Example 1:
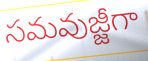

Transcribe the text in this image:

సమవుజ్జీగా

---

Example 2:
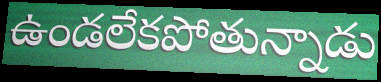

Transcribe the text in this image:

ఉండలేకపోతున్నాడు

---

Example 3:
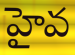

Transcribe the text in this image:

హైవ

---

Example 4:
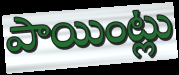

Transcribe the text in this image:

పాయింట్లు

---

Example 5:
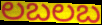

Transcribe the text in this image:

లబలబ